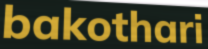
bakothari